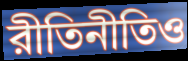
রীতিনীতিও